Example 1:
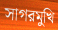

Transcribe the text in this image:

সাগরমুখি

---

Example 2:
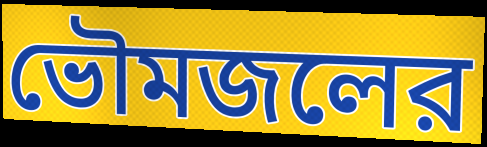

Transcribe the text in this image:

ভৌমজলের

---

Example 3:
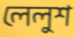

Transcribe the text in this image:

লেলুশ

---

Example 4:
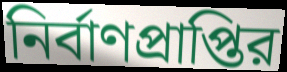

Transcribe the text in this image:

নির্বাণপ্রাপ্তির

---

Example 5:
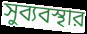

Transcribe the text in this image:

সুব্যবস্থার